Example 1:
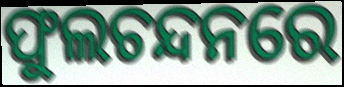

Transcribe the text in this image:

ଫୁଲଚନ୍ଦନରେ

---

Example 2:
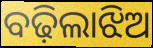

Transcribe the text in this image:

ବଢ଼ିଲାଝିଅ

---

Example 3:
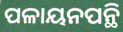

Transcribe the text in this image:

ପଳାୟନପନ୍ଥି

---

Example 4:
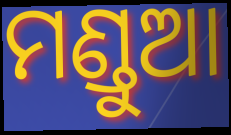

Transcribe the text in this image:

ମଣ୍ଡୁଆ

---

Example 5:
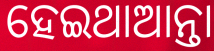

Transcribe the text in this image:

ହେଇଥାଆନ୍ତା